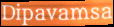
Dipavamsa